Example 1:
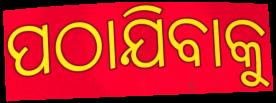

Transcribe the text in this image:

ପଠାଯିବାକୁ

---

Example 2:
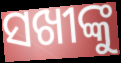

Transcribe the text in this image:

ସଖୀଙ୍କୁ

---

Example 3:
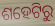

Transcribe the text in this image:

ଶହେଟିରୁ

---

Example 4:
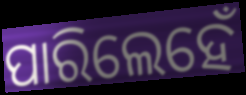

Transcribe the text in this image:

ପାରିଲେହେଁ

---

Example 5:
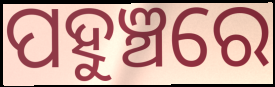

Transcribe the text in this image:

ପହୁଞ୍ଚରେ